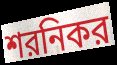
শরনিকর